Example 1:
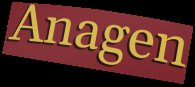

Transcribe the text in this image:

Anagen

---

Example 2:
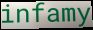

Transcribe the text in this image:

infamy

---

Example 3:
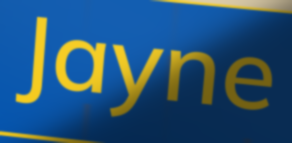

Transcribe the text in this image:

Jayne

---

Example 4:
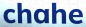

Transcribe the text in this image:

chahe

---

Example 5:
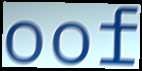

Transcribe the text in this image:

oof